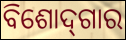
ବିଶୋଦ୍‌ଗାର